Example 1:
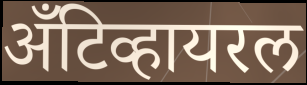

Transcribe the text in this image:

अँटिव्हायरल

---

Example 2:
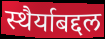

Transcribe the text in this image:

स्थैर्याबद्दल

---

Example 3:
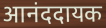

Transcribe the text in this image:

आनंददायक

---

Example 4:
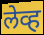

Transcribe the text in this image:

लेव्ह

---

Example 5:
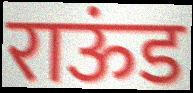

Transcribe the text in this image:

राऊंड